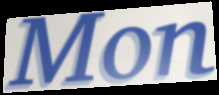
Mon